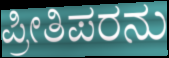
ಪ್ರೀತಿಪರನು